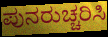
ಪುನರುಚ್ಚರಿಸಿ